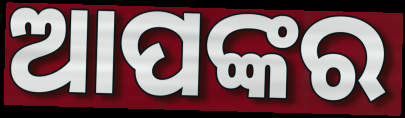
ଆପଙ୍କର